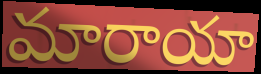
మారాయా